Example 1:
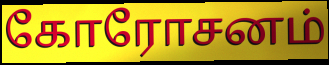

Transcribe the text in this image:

கோரோசனம்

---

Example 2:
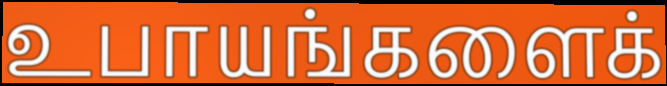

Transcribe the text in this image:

உபாயங்களைக்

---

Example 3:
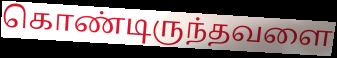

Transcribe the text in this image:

கொண்டிருந்தவளை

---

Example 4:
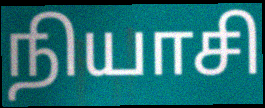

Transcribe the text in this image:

நியாசி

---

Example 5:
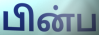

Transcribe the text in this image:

பின்ப